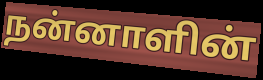
நன்னாளின்